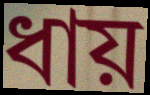
ধায়